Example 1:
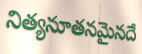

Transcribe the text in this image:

నిత్యనూతనమైనదే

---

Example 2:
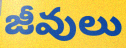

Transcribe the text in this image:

జీవులు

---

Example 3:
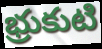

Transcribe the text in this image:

భ్రుకుటి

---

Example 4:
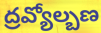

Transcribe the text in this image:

ద్రవ్యోల్బణ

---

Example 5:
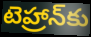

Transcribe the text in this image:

టెహ్రాన్‌కు